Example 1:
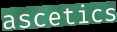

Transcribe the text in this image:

ascetics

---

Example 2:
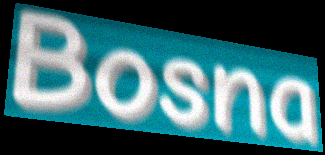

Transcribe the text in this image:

Bosna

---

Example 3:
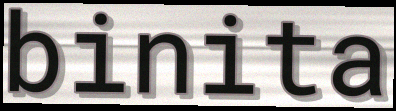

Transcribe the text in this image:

binita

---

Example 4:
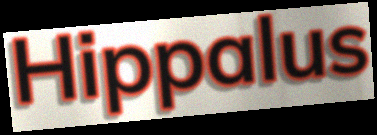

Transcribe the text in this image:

Hippalus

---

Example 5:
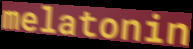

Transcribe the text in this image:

melatonin